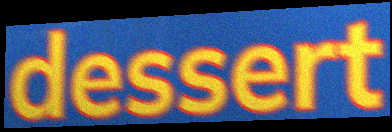
dessert